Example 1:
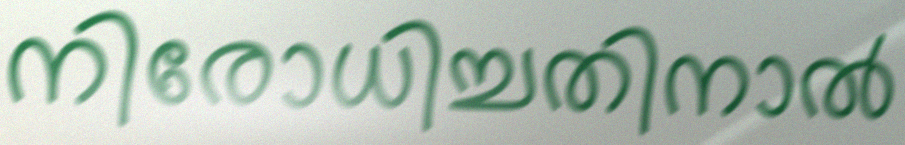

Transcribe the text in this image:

നിരോധിച്ചതിനാൽ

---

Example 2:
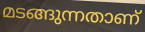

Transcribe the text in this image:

മടങ്ങുന്നതാണ്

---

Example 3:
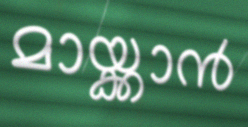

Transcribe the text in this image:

മായ്ക്കാൻ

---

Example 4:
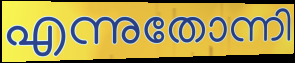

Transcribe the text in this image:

എന്നുതോന്നി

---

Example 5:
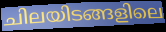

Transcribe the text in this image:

ചിലയിടങ്ങളിലെ